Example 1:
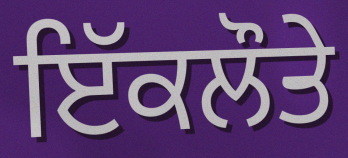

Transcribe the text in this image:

ਇੱਕਲੌਤੇ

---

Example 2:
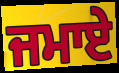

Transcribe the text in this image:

ਜਮਾਏ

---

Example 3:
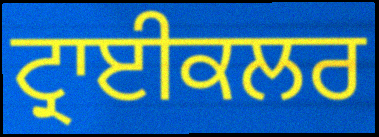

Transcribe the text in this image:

ਟ੍ਰਾਈਕਲਰ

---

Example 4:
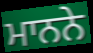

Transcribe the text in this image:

ਮਾਨਨੇ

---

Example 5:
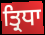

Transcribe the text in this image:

ਤ੍ਰਿਧਾ